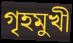
গৃহমুখী